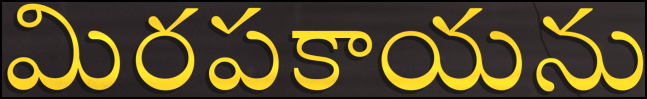
మిరపకాయను